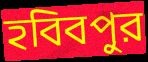
হবিবপুর